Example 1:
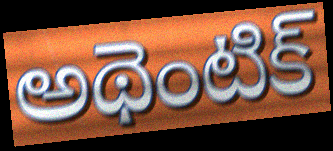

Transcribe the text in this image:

అథెంటిక్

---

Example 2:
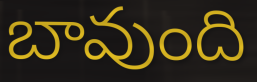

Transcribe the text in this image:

బావుంది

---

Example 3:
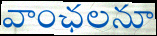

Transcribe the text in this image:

వాంఛలనూ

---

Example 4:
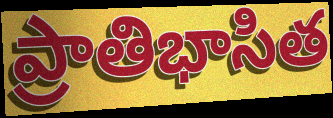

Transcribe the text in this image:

ప్రాతిభాసిత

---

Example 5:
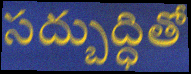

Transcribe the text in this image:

సద్బుద్ధితో